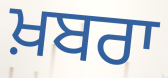
ਖ਼ਬਰਾ